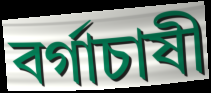
বর্গাচাষী